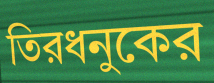
তিরধনুকের